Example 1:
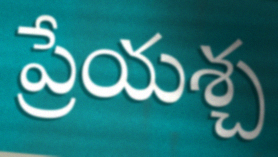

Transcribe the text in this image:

ప్రేయశ్చ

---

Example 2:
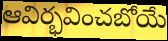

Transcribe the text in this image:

ఆవిర్భవించబోయే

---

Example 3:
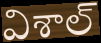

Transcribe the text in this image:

విశాల్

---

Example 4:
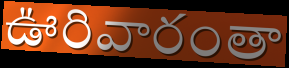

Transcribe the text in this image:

ఊరివారంతా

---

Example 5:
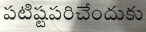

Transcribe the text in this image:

పటిష్టపరిచేందుకు